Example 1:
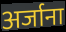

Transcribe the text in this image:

अर्जाना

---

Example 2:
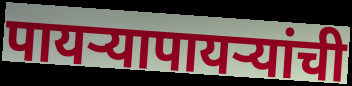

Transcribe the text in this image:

पायऱ्यापायऱ्यांची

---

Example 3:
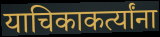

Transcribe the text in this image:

याचिकाकर्त्यांना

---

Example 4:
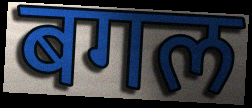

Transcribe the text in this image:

बगल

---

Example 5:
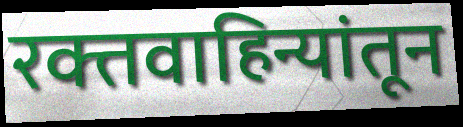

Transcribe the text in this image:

रक्तवाहिन्यांतून